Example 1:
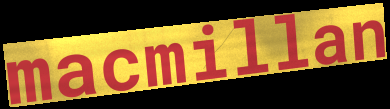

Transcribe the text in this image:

macmillan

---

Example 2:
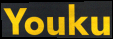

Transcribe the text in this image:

Youku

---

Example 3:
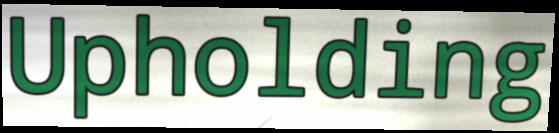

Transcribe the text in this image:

Upholding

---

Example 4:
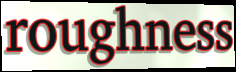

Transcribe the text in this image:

roughness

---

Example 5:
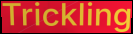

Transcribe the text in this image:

Trickling